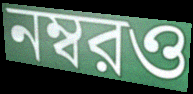
নম্বরও